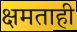
क्षमताही